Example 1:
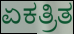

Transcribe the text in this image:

ಏಕತ್ರಿತ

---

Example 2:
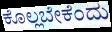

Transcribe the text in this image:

ಕೊಲ್ಲಬೇಕೆಂದು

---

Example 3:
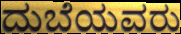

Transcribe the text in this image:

ದುಬೆಯವರು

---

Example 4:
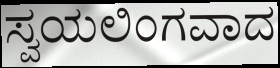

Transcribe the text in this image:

ಸ್ವಯಲಿಂಗವಾದ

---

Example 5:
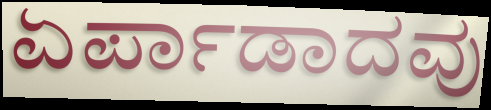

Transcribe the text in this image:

ಏರ್ಪಾಡಾದವು